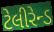
ટેલીરેન્ડ